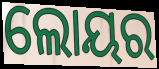
ଲୋୟର